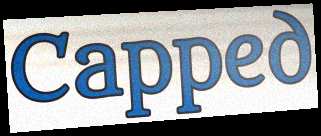
Capped